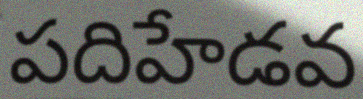
పదిహేడవ